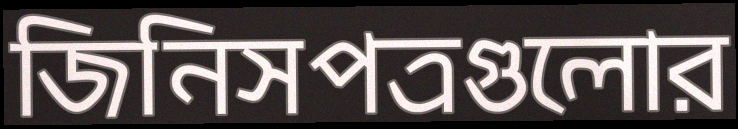
জিনিসপত্রগুলোর